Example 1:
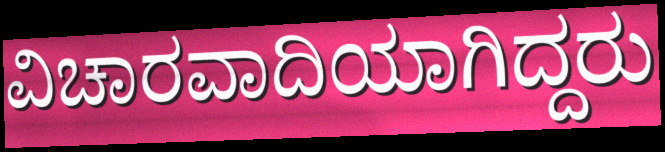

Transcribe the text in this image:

ವಿಚಾರವಾದಿಯಾಗಿದ್ದರು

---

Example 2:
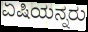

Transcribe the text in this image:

ಏಷಿಯನ್ನರು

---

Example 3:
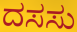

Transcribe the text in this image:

ದಸಸು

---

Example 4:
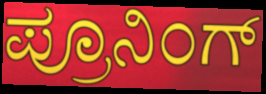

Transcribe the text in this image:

ಪ್ರೂನಿಂಗ್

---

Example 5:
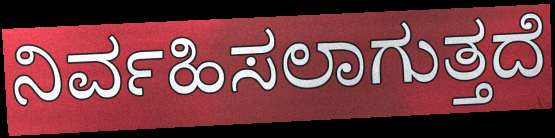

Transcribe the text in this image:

ನಿರ್ವಹಿಸಲಾಗುತ್ತದೆ